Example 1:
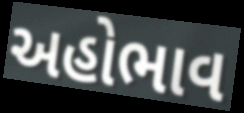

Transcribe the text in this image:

અહોભાવ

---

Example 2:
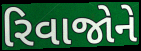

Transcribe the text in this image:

રિવાજોને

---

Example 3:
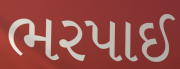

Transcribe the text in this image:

ભરપાઈ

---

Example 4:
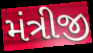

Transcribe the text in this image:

મંત્રીજી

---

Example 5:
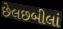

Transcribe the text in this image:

છેલછબીલાં